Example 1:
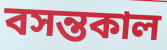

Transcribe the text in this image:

বসন্তকাল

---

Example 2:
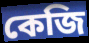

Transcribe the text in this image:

কেজি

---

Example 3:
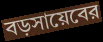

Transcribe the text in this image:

বড়সায়েবের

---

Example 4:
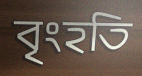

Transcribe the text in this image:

বৃংহতি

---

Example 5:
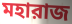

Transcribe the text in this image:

মহারাজ